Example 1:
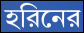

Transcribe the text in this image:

হরিনের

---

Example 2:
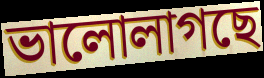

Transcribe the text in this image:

ভালোলাগছে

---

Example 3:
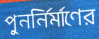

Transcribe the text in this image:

পুনর্নির্মাণের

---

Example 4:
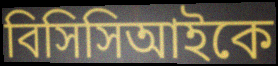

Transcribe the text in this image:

বিসিসিআইকে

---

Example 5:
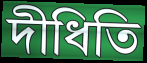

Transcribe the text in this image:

দীধিতি